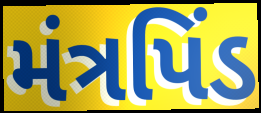
મંત્રપિંડ